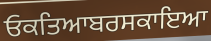
ਓਕਤਿਆਬਰਸਕਾਇਆ